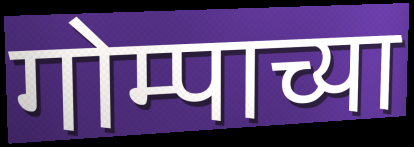
गोम्पाच्या